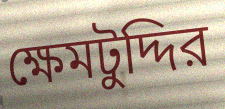
ক্ষেমটুদ্দির